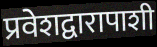
प्रवेशद्वारापाशी